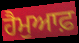
ਹੈਮੁਆਫ਼